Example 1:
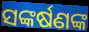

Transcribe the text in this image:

ସଙ୍କର୍ଷଣଙ୍କ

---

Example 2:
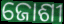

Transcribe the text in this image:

ଜୋଶୀ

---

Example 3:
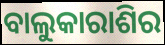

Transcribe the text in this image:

ବାଲୁକାରାଶିର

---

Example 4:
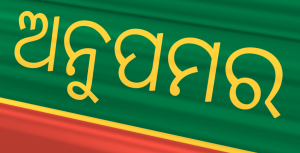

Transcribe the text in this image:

ଅନୁପମର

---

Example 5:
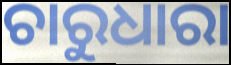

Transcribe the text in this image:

ଚାରୁଧାରା